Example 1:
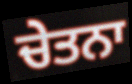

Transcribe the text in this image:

ਚੇਤਨਾ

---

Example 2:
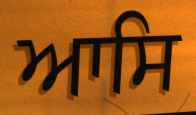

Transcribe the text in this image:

ਆਸਿ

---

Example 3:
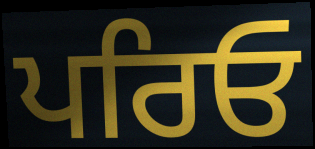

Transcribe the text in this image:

ਪਰਿਓ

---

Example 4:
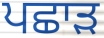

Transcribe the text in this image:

ਪਛਾੜ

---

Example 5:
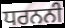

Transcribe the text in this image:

ਧਰਨਨੀ